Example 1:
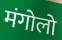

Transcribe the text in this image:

मंगोलो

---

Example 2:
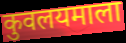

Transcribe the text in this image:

कुवलयमाला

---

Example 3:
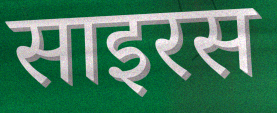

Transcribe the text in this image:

साइरस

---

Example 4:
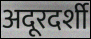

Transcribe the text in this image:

अदूरदर्शी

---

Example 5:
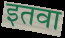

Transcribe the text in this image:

इतवा